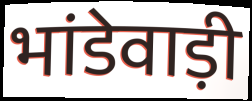
भांडेवाड़ी